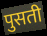
पुसती